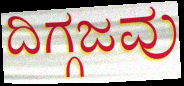
ದಿಗ್ಗಜವು